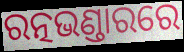
ରତ୍ନଭଣ୍ଡାରରେ